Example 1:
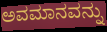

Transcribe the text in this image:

ಅವಮಾನವನ್ನು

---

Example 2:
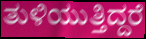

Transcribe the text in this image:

ತುಳಿಯುತ್ತಿದ್ದರೆ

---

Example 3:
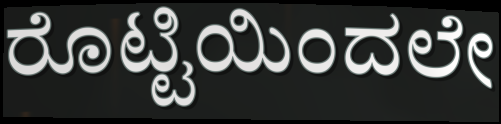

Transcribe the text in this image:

ರೊಟ್ಟಿಯಿಂದಲೇ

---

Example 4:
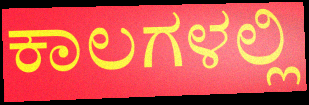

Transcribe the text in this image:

ಕಾಲಗಳಲ್ಲಿ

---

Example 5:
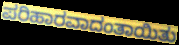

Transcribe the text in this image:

ಪರಿಹಾರವಾದಂತಾಯಿತು